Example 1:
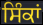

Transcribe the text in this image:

ਸਿੰਕਾਂ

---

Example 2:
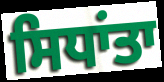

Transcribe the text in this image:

ਸਿਧਾਂਤਾ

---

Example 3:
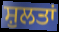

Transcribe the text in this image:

ਸ਼ੁਲਤਾਂ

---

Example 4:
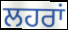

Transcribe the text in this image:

ਲਹਰਾਂ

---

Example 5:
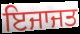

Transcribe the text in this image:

ਇਜਾਜਤ